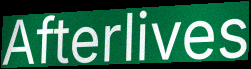
Afterlives